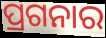
ପ୍ରଗନାର